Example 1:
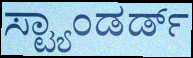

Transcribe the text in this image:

ಸ್ಟ್ಯಾಂಡರ್ಡ್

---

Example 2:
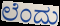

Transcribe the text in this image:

ಲೆಂದು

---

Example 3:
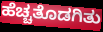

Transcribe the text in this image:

ಹೆಚ್ಚತೊಡಗಿತು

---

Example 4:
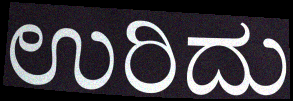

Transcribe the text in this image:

ಉರಿದು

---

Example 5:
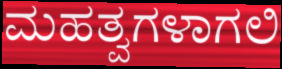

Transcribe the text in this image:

ಮಹತ್ವಗಳಾಗಲಿ